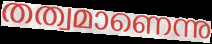
തത്വമാണെന്നു